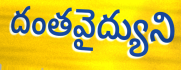
దంతవైద్యుని